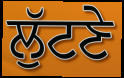
ਲੁੱਟਣੇ